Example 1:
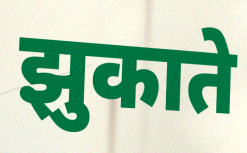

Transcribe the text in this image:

झुकाते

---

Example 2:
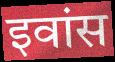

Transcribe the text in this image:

इवांस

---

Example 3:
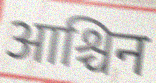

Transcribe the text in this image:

आश्चिन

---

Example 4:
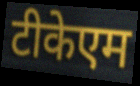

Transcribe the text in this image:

टीकेएम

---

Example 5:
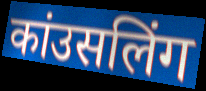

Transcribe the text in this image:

कांउसलिंग